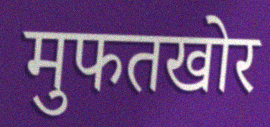
मुफतखोर